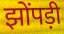
झोंपड़ी